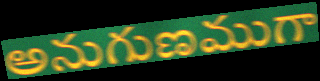
అనుగుణముగా